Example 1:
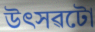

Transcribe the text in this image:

উৎসৱটো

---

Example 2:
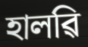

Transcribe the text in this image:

হালৱি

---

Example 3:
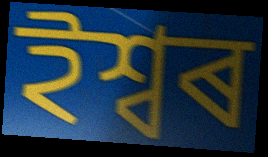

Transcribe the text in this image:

ইশ্বৰ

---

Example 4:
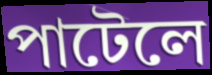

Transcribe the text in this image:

পাটেলে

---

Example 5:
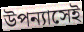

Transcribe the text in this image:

উপন্যাসেই